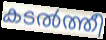
കടൽത്തീ